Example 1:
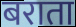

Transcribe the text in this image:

बराता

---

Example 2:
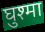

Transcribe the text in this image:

घुश्मा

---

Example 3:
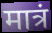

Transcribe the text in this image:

मात्रं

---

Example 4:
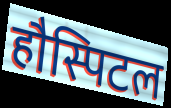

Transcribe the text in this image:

हौस्पिटल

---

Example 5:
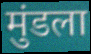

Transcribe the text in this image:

मुंडला